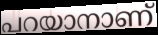
പറയാനാണ്